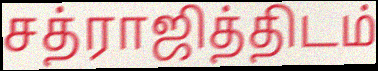
சத்ராஜித்திடம்